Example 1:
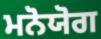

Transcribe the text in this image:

ਮਨੋਯੋਗ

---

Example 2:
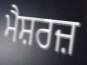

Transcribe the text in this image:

ਮੈਸ਼ਰਜ਼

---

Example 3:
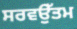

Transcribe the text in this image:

ਸਰਵਉੱਤਮ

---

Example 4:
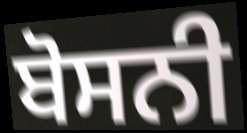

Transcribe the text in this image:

ਬੋਸਨੀ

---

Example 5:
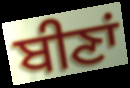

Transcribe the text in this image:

ਬੀਣਾਂ